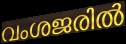
വംശജരിൽ